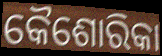
କୈଶୋରିକା